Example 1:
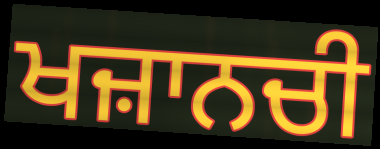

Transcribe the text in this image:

ਖਜ਼ਾਨਚੀ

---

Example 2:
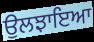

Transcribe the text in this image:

ਉਲਝਾਇਆ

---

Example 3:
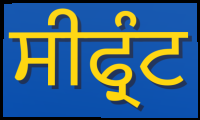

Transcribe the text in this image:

ਸੀਫ੍ਰੰਟ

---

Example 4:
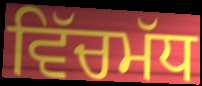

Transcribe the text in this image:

ਵਿੱਚਮੱਧ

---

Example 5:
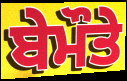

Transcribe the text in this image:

ਬੇਮੌਤੇ